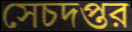
সেচদপ্তর